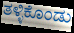
ತಳ್ಳಿಕೊಂಡು